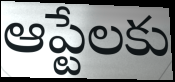
ఆప్టేలకు